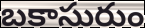
బకాసురుం